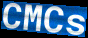
CMCs